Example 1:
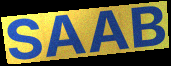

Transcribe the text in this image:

SAAB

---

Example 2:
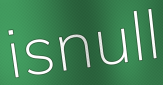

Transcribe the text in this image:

isnull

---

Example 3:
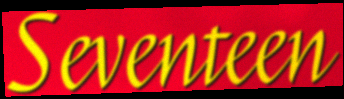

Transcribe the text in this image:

Seventeen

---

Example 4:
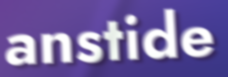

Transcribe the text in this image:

anstide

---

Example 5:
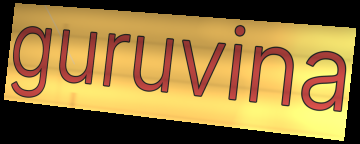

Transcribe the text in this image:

guruvina